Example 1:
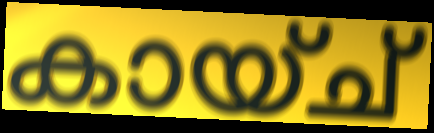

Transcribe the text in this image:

കായ്ച്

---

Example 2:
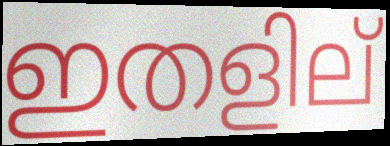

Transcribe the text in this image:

ഇതളില്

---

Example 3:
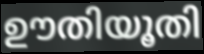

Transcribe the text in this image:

ഊതിയൂതി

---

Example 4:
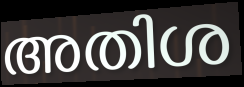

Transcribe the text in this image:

അതിശ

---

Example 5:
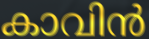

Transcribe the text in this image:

കാവിൻ